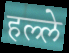
हल्ले